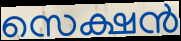
സെക്ഷൻ